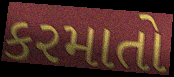
કરમાતો